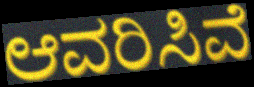
ಆವರಿಸಿವೆ